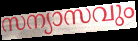
സന്യാസവും